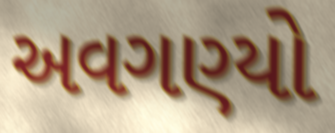
અવગણ્યો